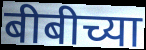
बीबीच्या